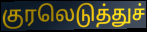
குரலெடுத்துச்